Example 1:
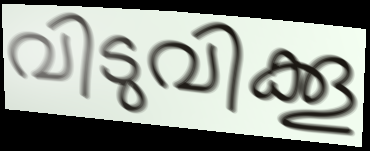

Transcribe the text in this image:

വിടുവിക്കൂ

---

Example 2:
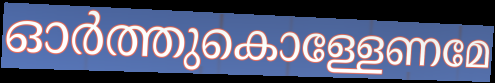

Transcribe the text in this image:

ഓർത്തുകൊള്ളേണമേ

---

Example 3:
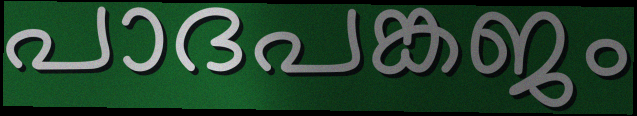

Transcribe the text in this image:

പാദപങ്കജം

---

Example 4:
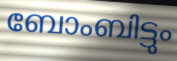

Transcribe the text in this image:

ബോംബിട്ടും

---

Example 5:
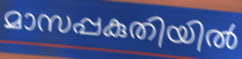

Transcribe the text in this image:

മാസപ്പകുതിയിൽ